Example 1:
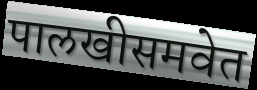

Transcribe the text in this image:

पालखीसमवेत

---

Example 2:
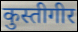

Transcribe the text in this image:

कुस्तीगीर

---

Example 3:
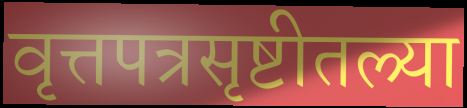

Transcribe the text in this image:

वृत्तपत्रसृष्टीतल्या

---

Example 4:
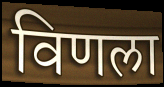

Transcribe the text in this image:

विणला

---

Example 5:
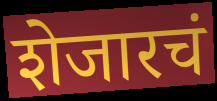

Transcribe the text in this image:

शेजारचं